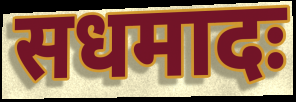
सधमादः